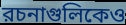
রচনাগুলিকেও